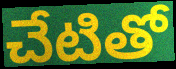
చేటితో